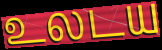
உலடய